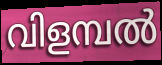
വിളമ്പൽ